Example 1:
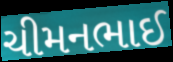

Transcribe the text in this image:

ચીમનભાઈ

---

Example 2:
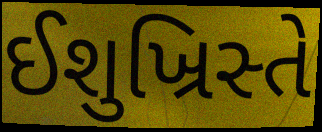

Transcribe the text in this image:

ઈશુખ્રિસ્તે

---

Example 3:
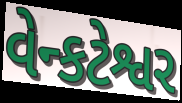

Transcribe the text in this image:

વેન્કટેશ્વર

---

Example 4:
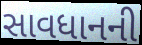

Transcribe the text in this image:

સાવધાનની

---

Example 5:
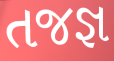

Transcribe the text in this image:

તજજ્ઞ